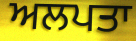
ਅਲਪਤਾ